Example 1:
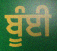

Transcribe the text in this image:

ਬੂੰਈ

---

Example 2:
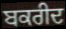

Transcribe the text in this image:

ਬਕਰੀਦ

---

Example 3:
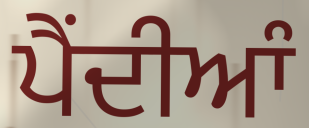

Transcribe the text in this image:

ਪੈੰਦੀਆੰ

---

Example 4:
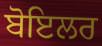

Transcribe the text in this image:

ਬੋਇਲਰ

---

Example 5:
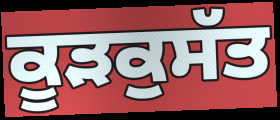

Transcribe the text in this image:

ਕੂੜਕੁਸੱਤ